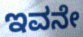
ಇವನೇ